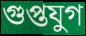
গুপ্তযুগ